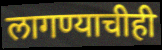
लागण्याचीही